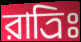
রাত্রিঃ